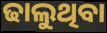
ଢାଲୁଥିବା